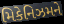
મિકેનિઝમને